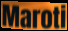
Maroti